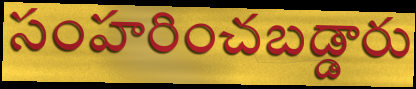
సంహరించబడ్డారు